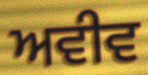
ਅਵੀਵ